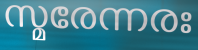
സ്മരേന്നരഃ